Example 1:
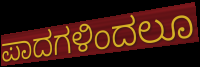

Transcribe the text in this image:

ಪಾದಗಳಿಂದಲೂ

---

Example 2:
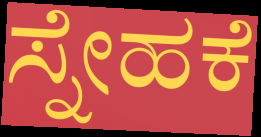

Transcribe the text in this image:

ಸ್ನೇಹಕೆ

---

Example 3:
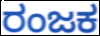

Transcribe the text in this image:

ರಂಜಕ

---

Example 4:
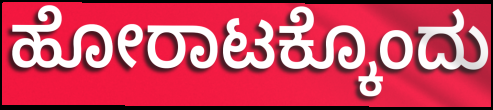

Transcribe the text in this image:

ಹೋರಾಟಕ್ಕೊಂದು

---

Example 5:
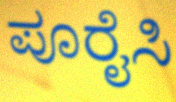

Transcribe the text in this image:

ಪೂರೈಸಿ